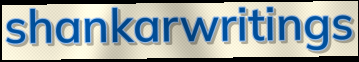
shankarwritings